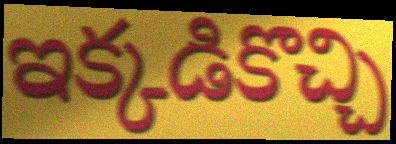
ఇక్కడికొచ్చి